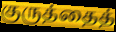
குருத்தைத்